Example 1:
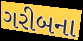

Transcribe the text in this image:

ગરીબના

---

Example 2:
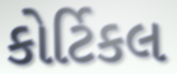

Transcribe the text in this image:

કોર્ટિકલ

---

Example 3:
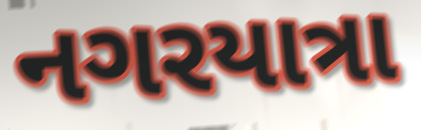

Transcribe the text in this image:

નગરયાત્રા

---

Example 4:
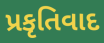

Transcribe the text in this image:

પ્રકૃતિવાદ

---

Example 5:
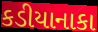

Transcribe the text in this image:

કડીયાનાકા